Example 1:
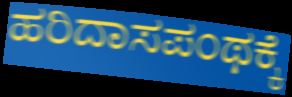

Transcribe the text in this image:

ಹರಿದಾಸಪಂಥಕ್ಕೆ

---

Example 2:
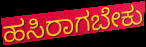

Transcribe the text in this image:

ಹಸಿರಾಗಬೇಕು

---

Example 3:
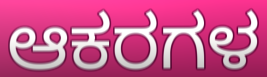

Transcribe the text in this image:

ಆಕರಗಳ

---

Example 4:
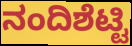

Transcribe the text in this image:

ನಂದಿಶೆಟ್ಟಿ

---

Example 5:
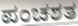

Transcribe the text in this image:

ಪಂಚಶತ